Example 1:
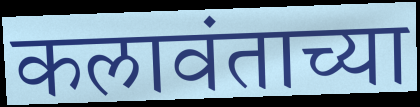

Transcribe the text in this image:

कलावंताच्या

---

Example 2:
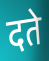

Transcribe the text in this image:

दते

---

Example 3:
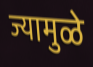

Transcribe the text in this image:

ज्यामुळे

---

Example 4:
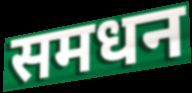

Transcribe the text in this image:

समधन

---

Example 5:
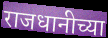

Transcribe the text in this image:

राजधानीच्या